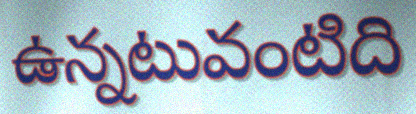
ఉన్నటువంటిది